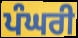
ਪੰਘਰੀ